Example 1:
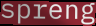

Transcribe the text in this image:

spreng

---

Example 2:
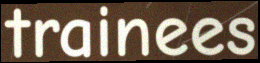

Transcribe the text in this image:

trainees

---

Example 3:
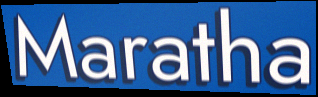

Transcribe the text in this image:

Maratha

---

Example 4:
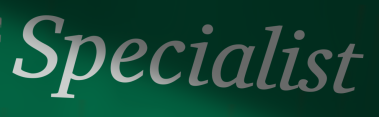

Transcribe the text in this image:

Specialist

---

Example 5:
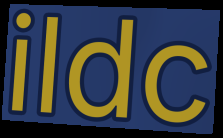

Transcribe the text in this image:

ildc